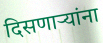
दिसणाऱ्यांना